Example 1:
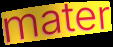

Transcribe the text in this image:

mater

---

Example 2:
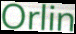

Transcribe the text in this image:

Orlin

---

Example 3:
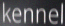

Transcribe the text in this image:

kennel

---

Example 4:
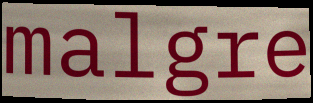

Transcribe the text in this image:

malgre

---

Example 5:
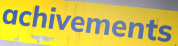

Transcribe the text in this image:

achivements